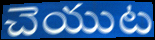
చెయుట